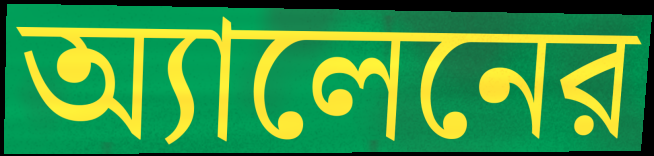
অ্যালেনের